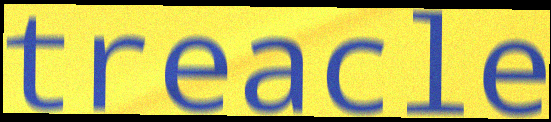
treacle